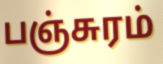
பஞ்சுரம்